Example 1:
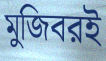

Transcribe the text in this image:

মুজিবরই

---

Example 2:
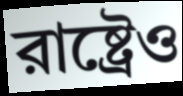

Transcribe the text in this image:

রাষ্ট্রেও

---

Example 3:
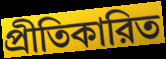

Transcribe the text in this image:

প্রীতিকারিত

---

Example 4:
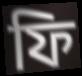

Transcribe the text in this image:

ফি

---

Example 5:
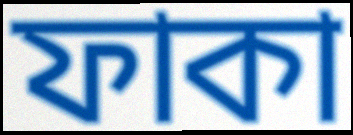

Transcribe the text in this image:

ফাকা